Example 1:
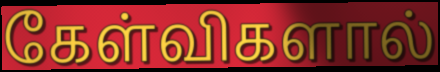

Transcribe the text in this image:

கேள்விகளால்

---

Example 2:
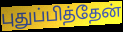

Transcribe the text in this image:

புதுப்பித்தேன்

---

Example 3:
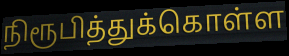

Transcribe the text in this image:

நிரூபித்துக்கொள்ள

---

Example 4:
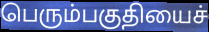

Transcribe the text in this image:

பெரும்பகுதியைச்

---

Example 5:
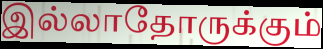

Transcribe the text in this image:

இல்லாதோருக்கும்